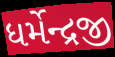
ધર્મેન્દ્રજી